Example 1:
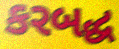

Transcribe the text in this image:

કરબદ્ધ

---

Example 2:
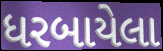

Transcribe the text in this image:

ધરબાયેલા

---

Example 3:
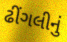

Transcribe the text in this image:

ઢીંગલીનું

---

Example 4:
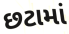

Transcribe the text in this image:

છટામાં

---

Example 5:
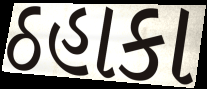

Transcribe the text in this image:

ઠહાકા